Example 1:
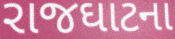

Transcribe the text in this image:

રાજઘાટના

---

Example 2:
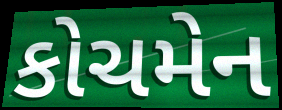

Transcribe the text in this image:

કોચમેન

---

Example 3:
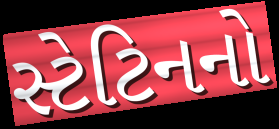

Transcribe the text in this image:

સ્ટેટિનનો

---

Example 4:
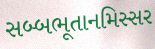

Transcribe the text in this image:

સબ્બભૂતાનમિસ્સર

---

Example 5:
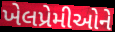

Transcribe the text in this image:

ખેલપ્રેમીઓને